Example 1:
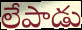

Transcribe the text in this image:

లేపాడు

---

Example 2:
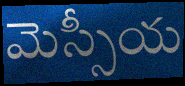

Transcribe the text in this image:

మెస్సీయ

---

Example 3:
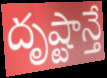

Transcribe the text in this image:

దృష్టాన్తే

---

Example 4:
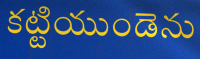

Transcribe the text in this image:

కట్టియుండెను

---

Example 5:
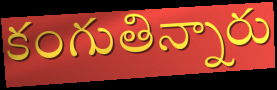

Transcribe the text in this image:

కంగుతిన్నారు